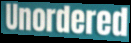
Unordered